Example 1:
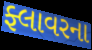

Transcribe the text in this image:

ફ્લાવરના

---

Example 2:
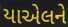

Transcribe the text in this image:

યાએલને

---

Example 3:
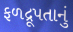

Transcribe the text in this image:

ફળદ્રૂપતાનું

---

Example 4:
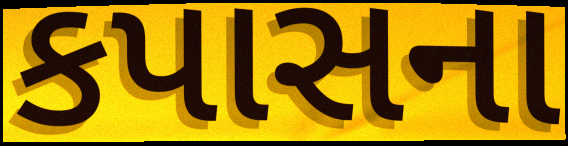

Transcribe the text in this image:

કપાસના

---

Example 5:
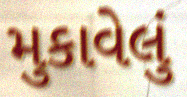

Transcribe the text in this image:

મુકાવેલું